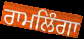
ਰਾਮਲਿੰਗਾ